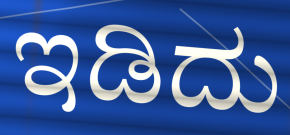
ಇಡಿದು